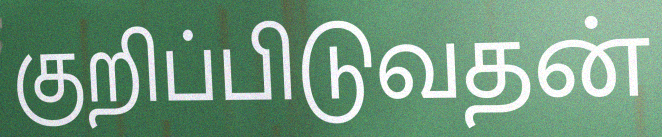
குறிப்பிடுவதன்